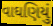
વાઘણિયું